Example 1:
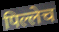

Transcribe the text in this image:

पिल्लेच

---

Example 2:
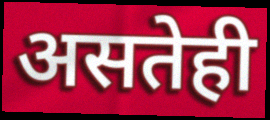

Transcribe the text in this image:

असतेही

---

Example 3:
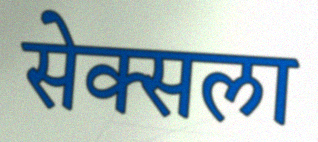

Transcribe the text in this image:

सेक्सला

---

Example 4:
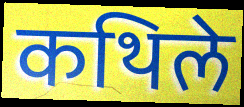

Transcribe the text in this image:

कथिले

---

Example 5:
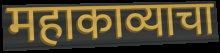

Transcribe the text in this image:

महाकाव्याचा